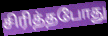
சிரித்தபோது